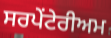
ਸਰਪੇਂਟੇਰੀਅਮ